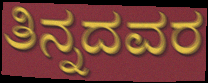
ತಿನ್ನದವರ